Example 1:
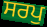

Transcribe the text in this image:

ਸਰਪੁ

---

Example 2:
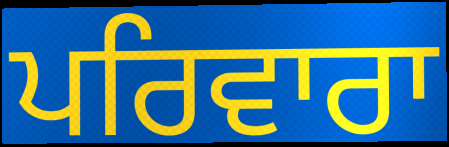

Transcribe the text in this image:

ਪਰਿਵਾਰਾ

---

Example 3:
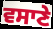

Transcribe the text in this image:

ਵਸਾਣੇ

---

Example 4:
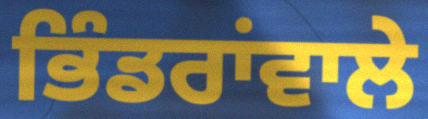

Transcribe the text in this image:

ਭਿੰਡਰਾਂਵਾਲੇ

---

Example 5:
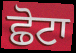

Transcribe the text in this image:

ਛੋਟਾ